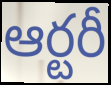
ఆర్టరీ